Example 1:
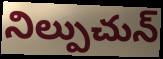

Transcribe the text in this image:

నిల్పుచున్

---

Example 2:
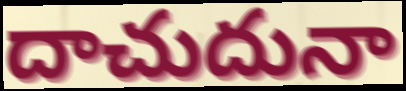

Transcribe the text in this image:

దాచుదునా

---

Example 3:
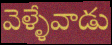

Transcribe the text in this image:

వెళ్ళేవాడు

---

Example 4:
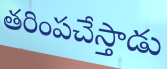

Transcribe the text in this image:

తరింపచేస్తాడు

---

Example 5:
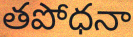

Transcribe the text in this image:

తపోధనా